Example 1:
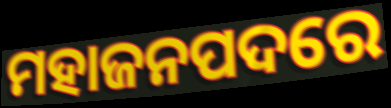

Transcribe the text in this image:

ମହାଜନପଦରେ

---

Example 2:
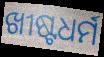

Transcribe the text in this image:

ଖୀଷ୍ଟଧର୍ମ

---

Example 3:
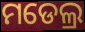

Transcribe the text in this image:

ମଡେଲ୍ର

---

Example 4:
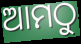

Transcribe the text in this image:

ଆମଠୁ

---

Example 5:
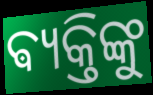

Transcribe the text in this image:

ଵ୍ୟକ୍ତିଙ୍କୁ